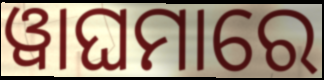
ୱାଘମାରେ